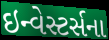
ઇન્વેસ્ટર્સના